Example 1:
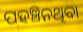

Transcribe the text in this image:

ପହଞ୍ଚିନଥିବା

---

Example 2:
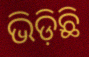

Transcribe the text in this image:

ଭିଡ଼ିଛି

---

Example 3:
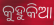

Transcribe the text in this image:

କୁହୁକିଆ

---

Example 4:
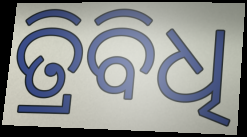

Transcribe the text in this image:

ତ୍ରିବିଧି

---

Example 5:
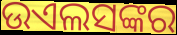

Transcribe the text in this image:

ଉଏଲସଙ୍କର